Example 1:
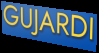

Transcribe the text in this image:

GUJARDI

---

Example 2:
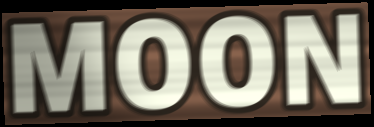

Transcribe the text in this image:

MOON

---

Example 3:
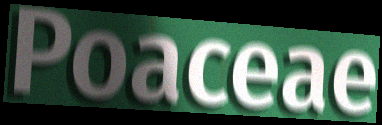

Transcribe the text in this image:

Poaceae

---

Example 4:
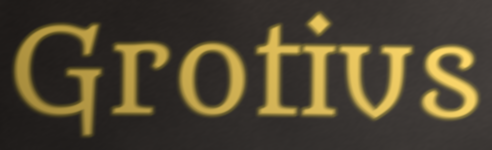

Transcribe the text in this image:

Grotius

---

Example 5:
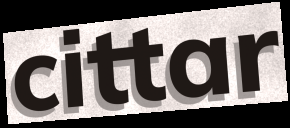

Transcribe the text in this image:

cittar